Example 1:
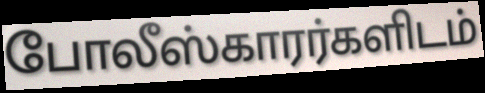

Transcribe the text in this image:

போலீஸ்காரர்களிடம்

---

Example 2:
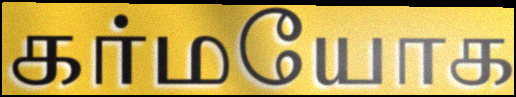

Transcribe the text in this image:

கர்மயோக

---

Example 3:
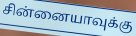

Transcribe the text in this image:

சின்னையாவுக்கு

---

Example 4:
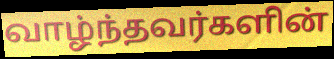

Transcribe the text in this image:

வாழ்ந்தவர்களின்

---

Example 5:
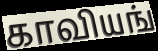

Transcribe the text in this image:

காவியங்